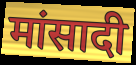
मांसादी